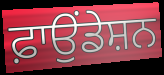
ਫ਼ਾਉਂਡੇਸ਼ਨ